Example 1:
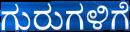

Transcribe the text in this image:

ಗುರುಗಳಿಗೆ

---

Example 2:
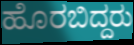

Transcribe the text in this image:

ಹೊರಬಿದ್ದರು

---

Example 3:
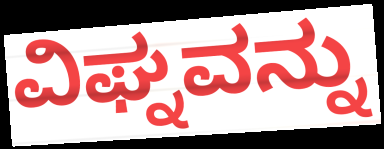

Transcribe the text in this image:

ವಿಘ್ನವನ್ನು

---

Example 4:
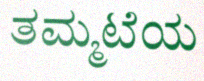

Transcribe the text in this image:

ತಮ್ಮಟೆಯ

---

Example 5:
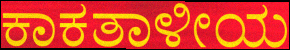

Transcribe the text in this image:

ಕಾಕತಾಳೀಯ